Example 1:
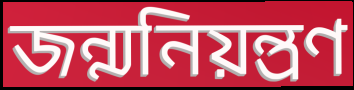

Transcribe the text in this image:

জন্মনিয়ন্ত্রণ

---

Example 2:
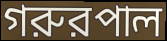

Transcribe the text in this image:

গরুরপাল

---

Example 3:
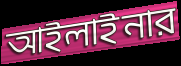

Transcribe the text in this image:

আইলাইনার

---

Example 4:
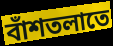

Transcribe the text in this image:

বাঁশতলাতে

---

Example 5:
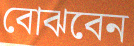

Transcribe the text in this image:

বোঝবেন